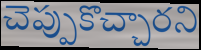
చెప్పుకొచ్చారని